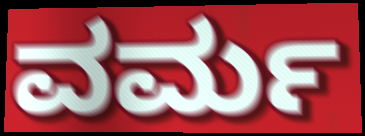
ವರ್ಮ